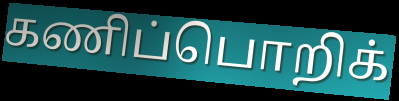
கணிப்பொறிக்